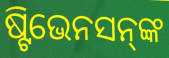
ଷ୍ଟିଭେନସନ୍‍ଙ୍କ